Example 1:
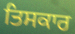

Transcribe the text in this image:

ਤਿਸਕਾਰ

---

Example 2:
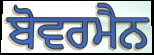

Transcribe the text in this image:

ਬੋਵਰਮੈਨ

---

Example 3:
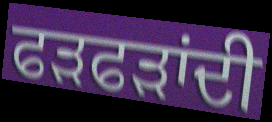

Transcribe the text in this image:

ਫੜਫੜਾਂਦੀ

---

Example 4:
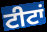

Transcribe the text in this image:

ਟੀਟਾਂ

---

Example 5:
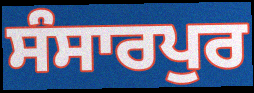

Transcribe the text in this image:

ਸੰਸਾਰਪੁਰ